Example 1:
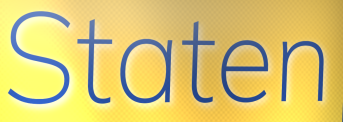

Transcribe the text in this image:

Staten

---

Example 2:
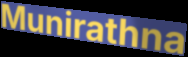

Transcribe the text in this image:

Munirathna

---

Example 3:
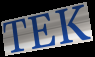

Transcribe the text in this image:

TEK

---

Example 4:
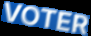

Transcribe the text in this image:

VOTER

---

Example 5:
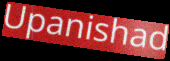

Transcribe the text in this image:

Upanishad